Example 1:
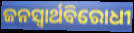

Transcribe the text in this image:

ଜନସ୍ଵାର୍ଥବିରୋଧୀ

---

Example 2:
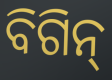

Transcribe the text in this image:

ବିଗିନ୍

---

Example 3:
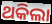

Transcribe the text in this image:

ଥକିଲା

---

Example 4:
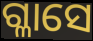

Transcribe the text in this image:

ଗ୍ଳାସେ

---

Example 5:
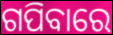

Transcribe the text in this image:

ଗପିବାରେ